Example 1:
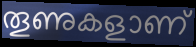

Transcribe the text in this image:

തൂണുകളാണ്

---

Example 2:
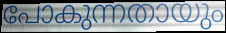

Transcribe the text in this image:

പോകുന്നതായും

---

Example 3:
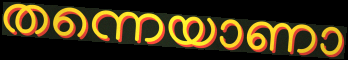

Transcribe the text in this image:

തന്നെയാണാ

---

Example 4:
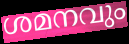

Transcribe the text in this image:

ശമനവും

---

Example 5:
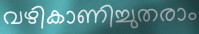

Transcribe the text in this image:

വഴികാണിച്ചുതരാം